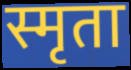
स्मृता